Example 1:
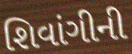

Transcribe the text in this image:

શિવાંગીની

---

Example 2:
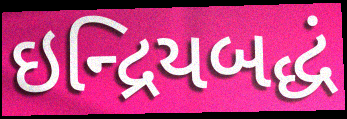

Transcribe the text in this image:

ઇન્દ્રિયબદ્ધં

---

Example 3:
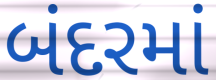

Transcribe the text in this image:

બંદરમાં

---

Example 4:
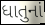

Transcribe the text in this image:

ધાતુનાં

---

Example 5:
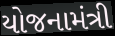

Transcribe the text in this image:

યોજનામંત્રી